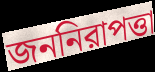
জননিরাপত্তা